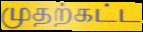
முதற்கட்ட